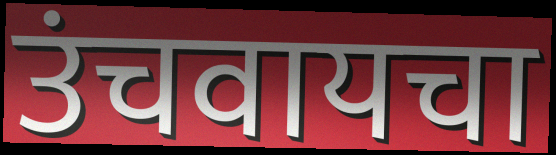
उंचवायचा